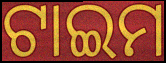
ଟାଇମ